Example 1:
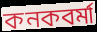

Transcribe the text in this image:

কনকবর্মা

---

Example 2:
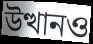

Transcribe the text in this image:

উত্থানও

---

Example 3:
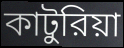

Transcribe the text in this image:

কাটুরিয়া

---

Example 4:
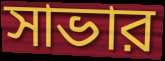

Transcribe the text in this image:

সাভার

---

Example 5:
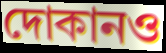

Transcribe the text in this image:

দোকানও